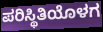
ಪರಿಸ್ಥಿತಿಯೊಳಗ